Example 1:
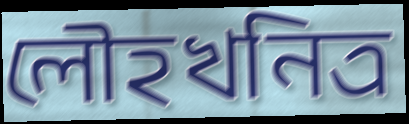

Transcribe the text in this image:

লৌহখনিত্র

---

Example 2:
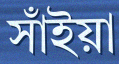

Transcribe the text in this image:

সাঁইয়া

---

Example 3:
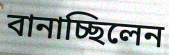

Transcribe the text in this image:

বানাচ্ছিলেন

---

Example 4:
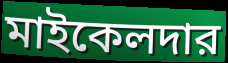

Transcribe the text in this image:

মাইকেলদার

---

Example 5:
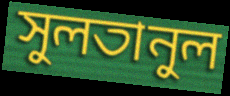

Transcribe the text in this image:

সুলতানুল